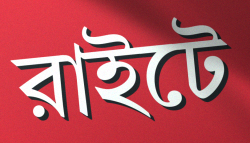
রাইটে